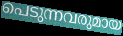
പെടുന്നവരുമായ